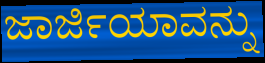
ಜಾರ್ಜಿಯಾವನ್ನು